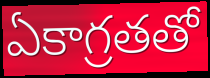
ఏకాగ్రతతో